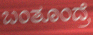
ಬಂತೂಂದ್ರೆ